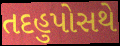
તદહુપોસથે